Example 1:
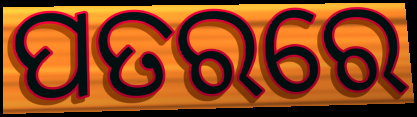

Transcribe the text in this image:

ପତରରେ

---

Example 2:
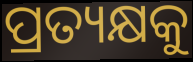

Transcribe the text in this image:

ପ୍ରତ୍ୟକ୍ଷକୁ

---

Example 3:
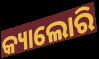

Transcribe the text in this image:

କ୍ୟାଲୋରି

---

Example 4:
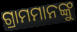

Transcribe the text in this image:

ଗ୍ରାମମାନଙ୍କୁ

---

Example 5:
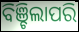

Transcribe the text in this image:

ବିଞ୍ଚିଲାପରି